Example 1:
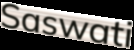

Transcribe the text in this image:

Saswati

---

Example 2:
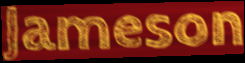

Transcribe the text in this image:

Jameson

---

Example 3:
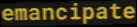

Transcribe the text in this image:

emancipate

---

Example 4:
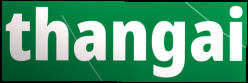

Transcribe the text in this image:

thangai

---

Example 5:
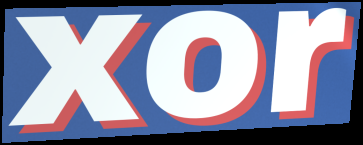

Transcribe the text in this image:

xor